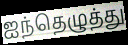
ஐந்தெழுத்து